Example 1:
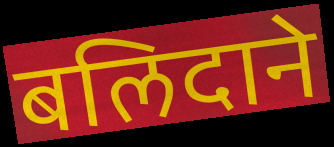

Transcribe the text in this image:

बलिदाने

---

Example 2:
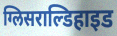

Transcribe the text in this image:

ग्लिसराल्डिहाइड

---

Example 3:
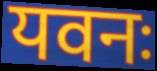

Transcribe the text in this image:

यवनः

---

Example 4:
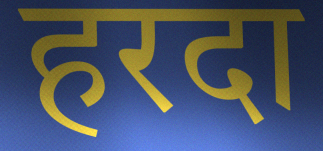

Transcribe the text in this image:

हरदा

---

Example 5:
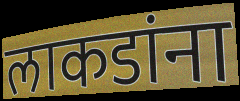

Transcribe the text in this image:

लाकडांना